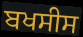
ਬਖਸੀਸ